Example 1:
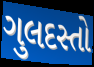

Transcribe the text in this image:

ગુલદસ્તો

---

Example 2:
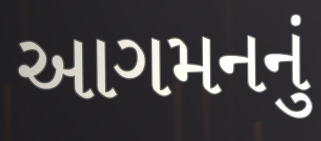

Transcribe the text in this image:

આગમનનું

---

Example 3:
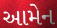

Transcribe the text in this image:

આમેન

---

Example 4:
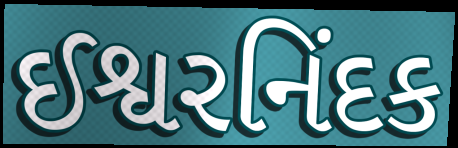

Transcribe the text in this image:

ઈશ્વરનિંદક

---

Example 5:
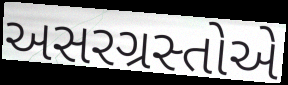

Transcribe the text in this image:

અસરગ્રસ્તોએ